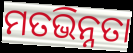
ମତଭିନ୍ନତା